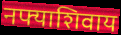
नफ्याशिवाय